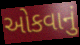
ઓકવાનું